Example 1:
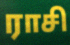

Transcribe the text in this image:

ராசி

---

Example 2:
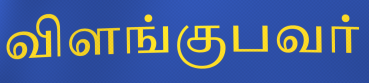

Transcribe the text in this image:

விளங்குபவர்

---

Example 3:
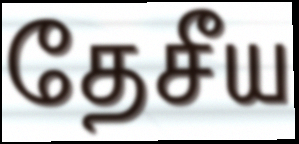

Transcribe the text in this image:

தேசீய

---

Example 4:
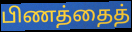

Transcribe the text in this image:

பிணத்தைத்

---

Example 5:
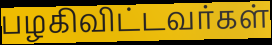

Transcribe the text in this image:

பழகிவிட்டவர்கள்